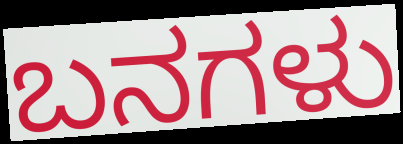
ಬನಗಳು